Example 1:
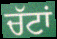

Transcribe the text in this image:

ਚੱਟਾਂ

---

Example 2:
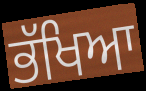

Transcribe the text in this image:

ਭੱਖਿਆ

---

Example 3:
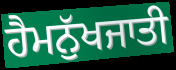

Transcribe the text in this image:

ਹੈਮਨੁੱਖਜਾਤੀ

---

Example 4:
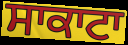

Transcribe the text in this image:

ਸਾਕਾਟਾ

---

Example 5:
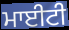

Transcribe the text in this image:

ਮਾਈਟੀ